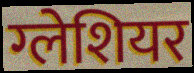
ग्लेशियर